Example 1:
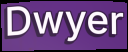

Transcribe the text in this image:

Dwyer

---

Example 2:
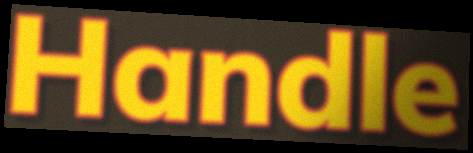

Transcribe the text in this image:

Handle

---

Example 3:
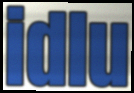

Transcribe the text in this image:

idlu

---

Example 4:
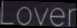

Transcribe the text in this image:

Lover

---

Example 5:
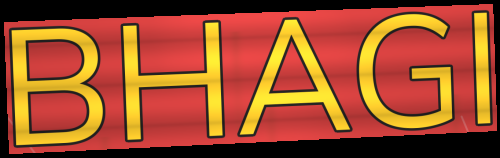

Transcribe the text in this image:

BHAGI